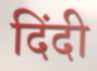
दिंदी